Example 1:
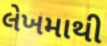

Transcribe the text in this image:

લેખમાથી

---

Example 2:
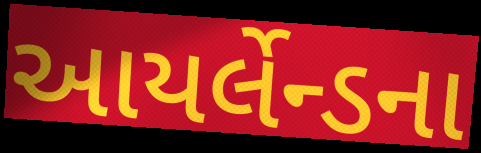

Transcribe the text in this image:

આયર્લેન્ડના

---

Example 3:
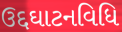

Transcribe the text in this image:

ઉદ્દઘાટનવિધિ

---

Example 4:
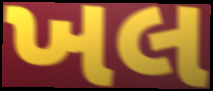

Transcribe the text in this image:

ખલ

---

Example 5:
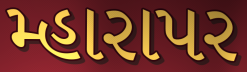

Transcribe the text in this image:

મ્હારાપર